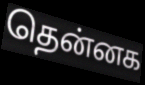
தென்னக